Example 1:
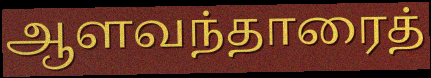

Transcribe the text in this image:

ஆளவந்தாரைத்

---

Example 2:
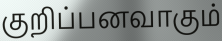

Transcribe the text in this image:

குறிப்பனவாகும்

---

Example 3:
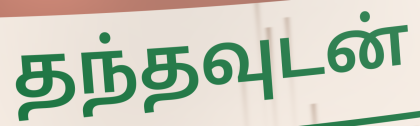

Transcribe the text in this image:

தந்தவுடன்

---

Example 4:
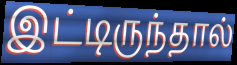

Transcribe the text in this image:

இட்டிருந்தால்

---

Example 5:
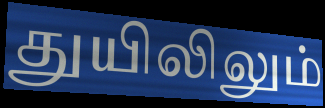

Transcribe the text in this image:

துயிலிலும்